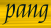
pang